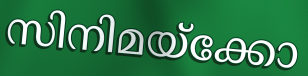
സിനിമയ്ക്കോ